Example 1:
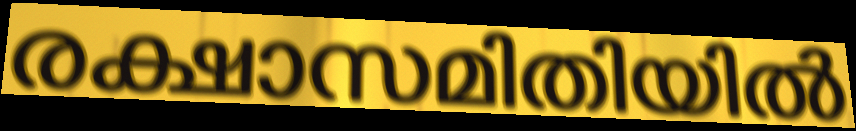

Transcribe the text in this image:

രക്ഷാസമിതിയിൽ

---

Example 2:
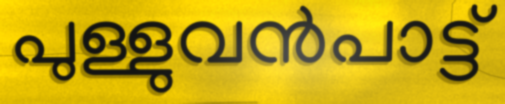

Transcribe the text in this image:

പുള്ളുവൻപാട്ട്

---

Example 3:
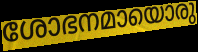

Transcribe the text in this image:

ശോഭനമായൊരു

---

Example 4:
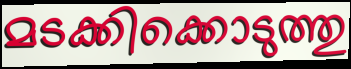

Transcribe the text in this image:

മടക്കിക്കൊടുത്തു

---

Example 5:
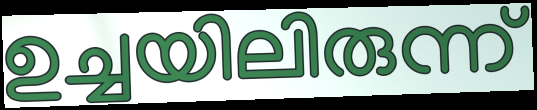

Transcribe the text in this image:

ഉച്ചയിലിരുന്ന്